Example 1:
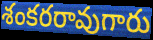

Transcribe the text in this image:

శంకరరావుగారు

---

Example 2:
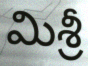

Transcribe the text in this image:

మిశ్రీ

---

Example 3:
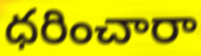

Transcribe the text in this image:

ధరించారా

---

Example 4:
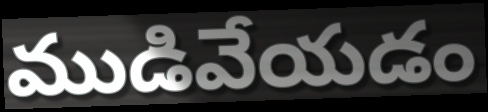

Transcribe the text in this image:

ముడివేయడం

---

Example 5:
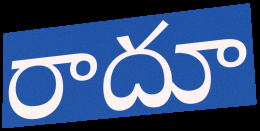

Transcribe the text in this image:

రాదూ